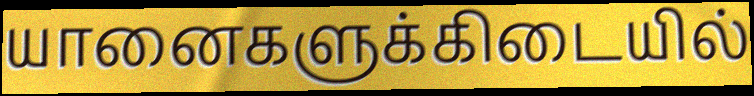
யானைகளுக்கிடையில்